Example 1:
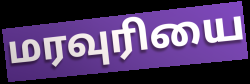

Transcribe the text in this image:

மரவுரியை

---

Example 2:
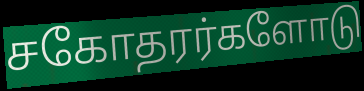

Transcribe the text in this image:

சகோதரர்களோடு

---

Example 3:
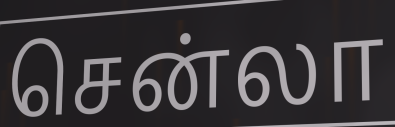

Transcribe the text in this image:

சென்லா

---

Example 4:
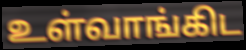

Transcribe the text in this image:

உள்வாங்கிட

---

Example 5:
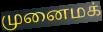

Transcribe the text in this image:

முனைமக்